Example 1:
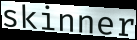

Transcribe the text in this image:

skinner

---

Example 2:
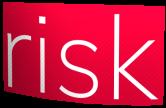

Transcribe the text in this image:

risk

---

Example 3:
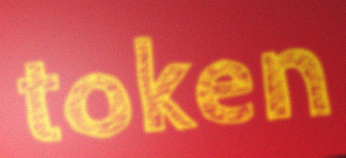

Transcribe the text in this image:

token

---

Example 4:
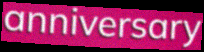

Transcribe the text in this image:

anniversary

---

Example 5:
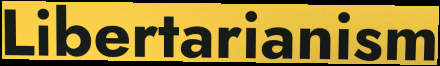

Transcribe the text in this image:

Libertarianism